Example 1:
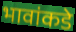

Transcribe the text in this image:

भावांकडे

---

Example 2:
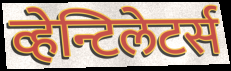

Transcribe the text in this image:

व्हेन्टिलेटर्स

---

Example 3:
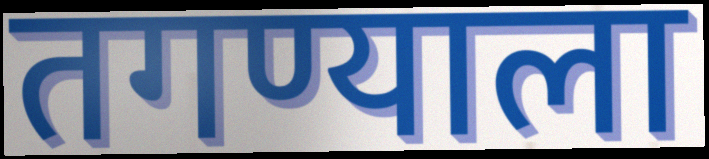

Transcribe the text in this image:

तगण्याला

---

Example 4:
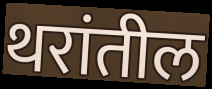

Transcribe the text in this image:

थरांतील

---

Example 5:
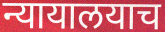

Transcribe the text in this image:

न्यायालयाच